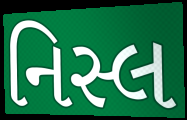
નિસ્લ